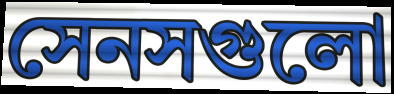
সেনসগুলো